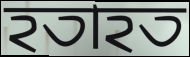
হতাহত